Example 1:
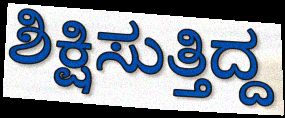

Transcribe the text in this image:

ಶಿಕ್ಷಿಸುತ್ತಿದ್ದ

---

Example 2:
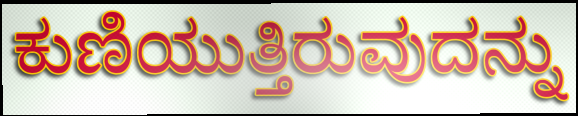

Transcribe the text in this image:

ಕುಣಿಯುತ್ತಿರುವುದನ್ನು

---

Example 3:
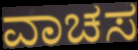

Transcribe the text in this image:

ವಾಚಸ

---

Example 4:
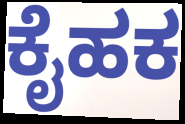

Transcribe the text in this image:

ಕೈಹಕ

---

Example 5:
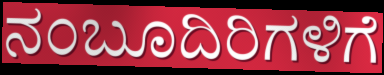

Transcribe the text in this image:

ನಂಬೂದಿರಿಗಳಿಗೆ